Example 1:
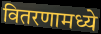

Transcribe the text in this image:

वितरणामध्ये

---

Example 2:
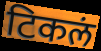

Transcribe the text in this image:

टिकलं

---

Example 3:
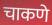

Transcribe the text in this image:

चाकणे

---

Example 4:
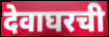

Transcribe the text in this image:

देवाघरची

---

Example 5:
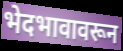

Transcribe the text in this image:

भेदभावावरून